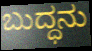
ಬುದ್ಧನು